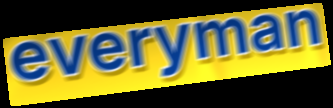
everyman